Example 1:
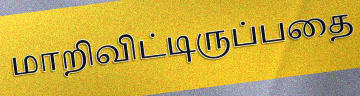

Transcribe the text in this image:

மாறிவிட்டிருப்பதை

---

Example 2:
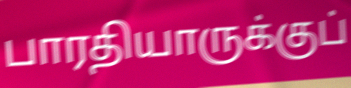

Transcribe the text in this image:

பாரதியாருக்குப்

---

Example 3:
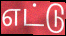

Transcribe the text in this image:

எட்டு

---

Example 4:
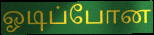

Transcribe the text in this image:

ஓடிப்போன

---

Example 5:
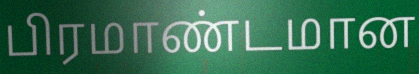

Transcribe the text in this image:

பிரமாண்டமான